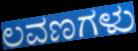
ಲವಣಗಳು